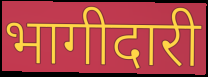
भागीदारी